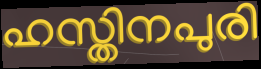
ഹസ്തിനപുരി